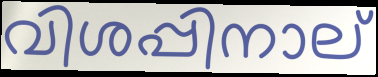
വിശപ്പിനാല്